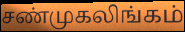
சண்முகலிங்கம்